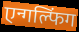
एन्गल्फिंग